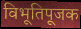
विभूतिपूजक